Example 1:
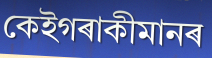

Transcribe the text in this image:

কেইগৰাকীমানৰ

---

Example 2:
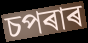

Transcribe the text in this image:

চপৰাৰ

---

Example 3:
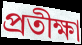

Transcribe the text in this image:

প্ৰতীক্ষা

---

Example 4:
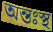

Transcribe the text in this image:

অন্তঃস্থ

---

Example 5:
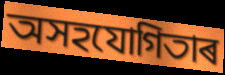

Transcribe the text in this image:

অসহযোগিতাৰ